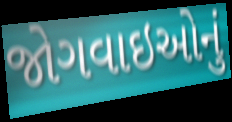
જોગવાઇઓનું